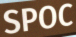
SPOC